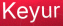
Keyur